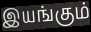
இயங்கும்